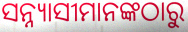
ସନ୍ନ୍ୟାସୀମାନଙ୍କଠାରୁ